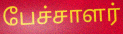
பேச்சாளர்